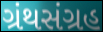
ગ્રંથસંગ્રહ